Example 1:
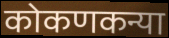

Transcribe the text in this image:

कोकणकन्या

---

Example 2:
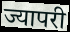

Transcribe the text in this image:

ज्यापरी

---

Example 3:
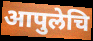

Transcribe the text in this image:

आपुलेचि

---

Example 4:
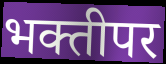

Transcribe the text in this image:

भक्तीपर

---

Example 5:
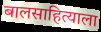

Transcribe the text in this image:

बालसाहित्याला